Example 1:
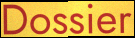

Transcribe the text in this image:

Dossier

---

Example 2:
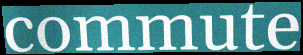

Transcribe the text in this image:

commute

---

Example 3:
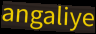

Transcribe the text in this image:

angaliye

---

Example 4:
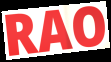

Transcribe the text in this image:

RAO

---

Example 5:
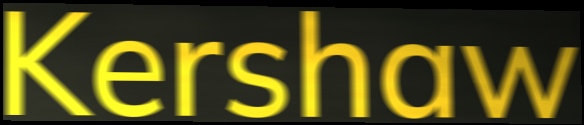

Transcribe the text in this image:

Kershaw